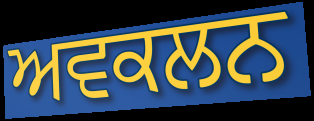
ਅਵਕਲਨ